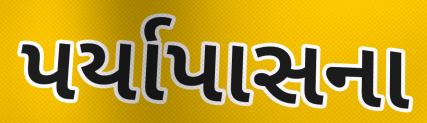
પર્યાપાસના